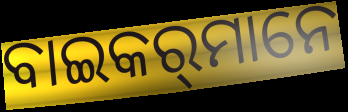
ବାଇକର୍‌ମାନେ